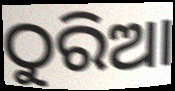
ଠୁରିଆ